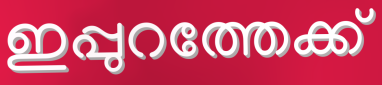
ഇപ്പുറത്തേക്ക്